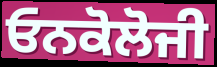
ਓਨਕੋਲੋਜੀ